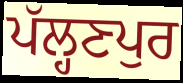
ਪੱਲ੍ਹਣਪੁਰ